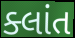
ક્લાંત